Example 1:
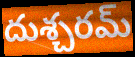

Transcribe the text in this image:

దుశ్చరమ్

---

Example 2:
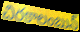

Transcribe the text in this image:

చిరకాలంబున్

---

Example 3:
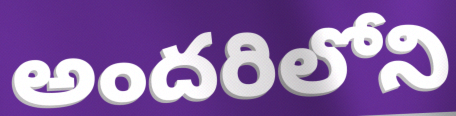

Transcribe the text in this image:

అందరిలోని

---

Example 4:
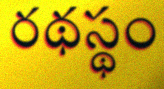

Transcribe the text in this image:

రథస్థం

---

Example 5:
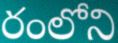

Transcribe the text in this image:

రంలోని